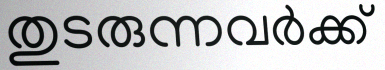
തുടരുന്നവർക്ക്